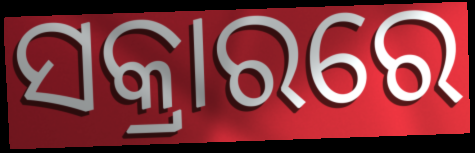
ସକ୍ରାରରେ